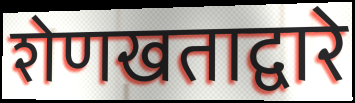
शेणखताद्वारे